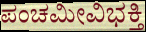
ಪಂಚಮೀವಿಭಕ್ತಿ